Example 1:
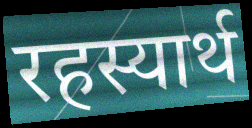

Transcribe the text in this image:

रहस्यार्थ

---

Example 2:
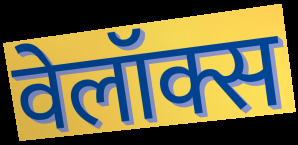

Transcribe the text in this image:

वेलॉक्स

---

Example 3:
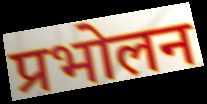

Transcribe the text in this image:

प्रभोलन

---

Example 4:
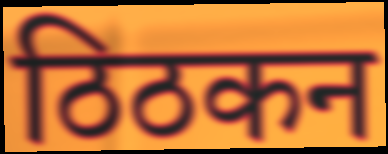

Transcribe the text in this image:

ठिठकन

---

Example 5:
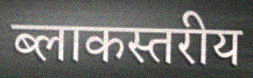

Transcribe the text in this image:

ब्लाकस्तरीय